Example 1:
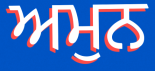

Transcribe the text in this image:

ਅਮੁਨ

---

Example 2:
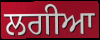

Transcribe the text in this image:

ਲਗੀਆ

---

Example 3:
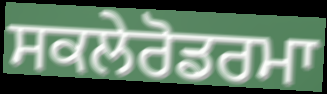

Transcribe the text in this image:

ਸਕਲੇਰੋਡਰਮਾ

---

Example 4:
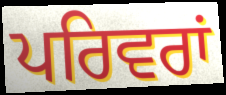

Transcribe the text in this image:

ਪਰਿਵਰਾਂ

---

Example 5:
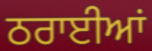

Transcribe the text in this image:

ਠਰਾਈਆਂ